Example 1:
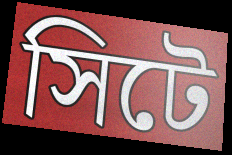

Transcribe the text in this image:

সিটে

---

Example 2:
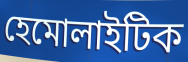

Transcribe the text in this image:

হেমোলাইটিক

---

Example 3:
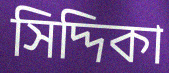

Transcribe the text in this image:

সিদ্দিকা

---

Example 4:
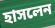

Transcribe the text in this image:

হাসলেন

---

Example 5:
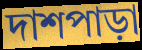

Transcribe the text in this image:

দাশপাড়া